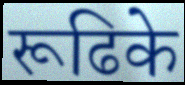
रूढिके